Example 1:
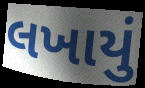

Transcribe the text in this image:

લખાયું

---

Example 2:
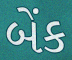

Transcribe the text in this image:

બેંક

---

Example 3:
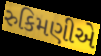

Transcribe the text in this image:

રુકિમણીએ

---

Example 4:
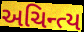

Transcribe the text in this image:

અચિન્ત્ય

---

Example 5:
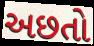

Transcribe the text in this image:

અછતો